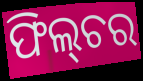
ଫିଲ୍‌ଚର